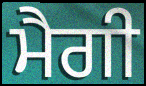
ਮੈਗੀ